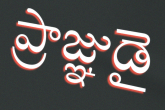
ప్రాజ్ఞుడై